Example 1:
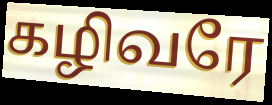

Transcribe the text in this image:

கழிவரே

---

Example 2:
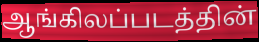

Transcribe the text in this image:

ஆங்கிலப்படத்தின்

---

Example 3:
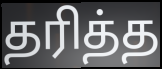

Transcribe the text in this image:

தரித்த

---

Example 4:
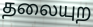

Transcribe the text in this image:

தலையுற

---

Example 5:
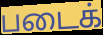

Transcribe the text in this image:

படைக்